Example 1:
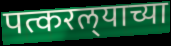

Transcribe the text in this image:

पत्करल्याच्या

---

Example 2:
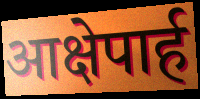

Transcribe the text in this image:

आक्षेपार्ह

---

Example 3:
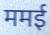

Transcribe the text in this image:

ममई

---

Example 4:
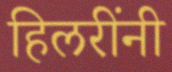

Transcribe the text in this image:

हिलरींनी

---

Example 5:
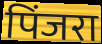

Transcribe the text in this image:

पिंजरा